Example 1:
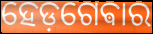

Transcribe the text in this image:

ହେଡ଼ଗେଵାର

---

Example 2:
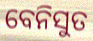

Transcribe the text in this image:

ବେନିସୁତ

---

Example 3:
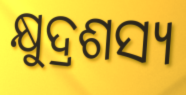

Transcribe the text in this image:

କ୍ଷୁଦ୍ରଶସ୍ୟ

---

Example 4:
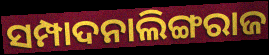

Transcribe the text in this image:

ସମ୍ପାଦନାଲିଙ୍ଗରାଜ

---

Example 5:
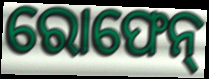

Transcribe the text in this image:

ରୋଫେନ୍